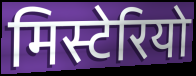
मिस्टेरियो